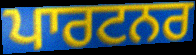
ਪਾਰਟਨਰ